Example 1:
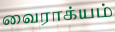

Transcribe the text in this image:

வைராக்யம்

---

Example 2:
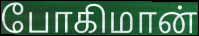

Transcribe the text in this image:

போகிமான்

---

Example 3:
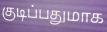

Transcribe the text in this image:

குடிப்பதுமாக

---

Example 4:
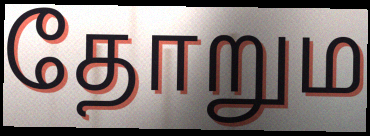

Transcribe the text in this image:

தோறும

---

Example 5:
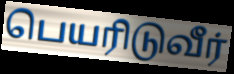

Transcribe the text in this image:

பெயரிடுவீர்